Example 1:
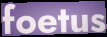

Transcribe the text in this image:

foetus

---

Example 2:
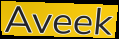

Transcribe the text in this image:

Aveek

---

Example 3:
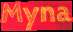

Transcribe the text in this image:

Myna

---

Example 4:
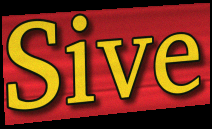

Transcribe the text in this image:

Sive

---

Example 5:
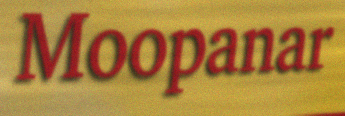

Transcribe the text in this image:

Moopanar